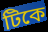
টিকে